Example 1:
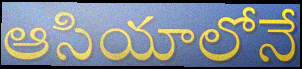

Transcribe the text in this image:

ఆసియాలోనే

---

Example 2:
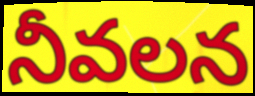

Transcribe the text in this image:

నీవలన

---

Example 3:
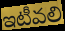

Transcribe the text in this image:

ఇటీవలి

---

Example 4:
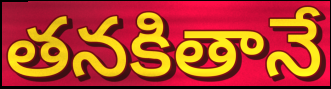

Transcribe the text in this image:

తనకితానే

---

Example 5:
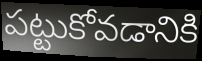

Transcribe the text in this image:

పట్టుకోవడానికి